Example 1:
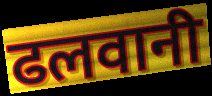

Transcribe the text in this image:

ढलवानी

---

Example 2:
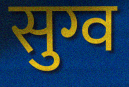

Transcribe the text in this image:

सुग्व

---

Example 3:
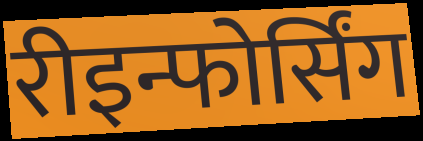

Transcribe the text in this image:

रीइन्फोर्सिंग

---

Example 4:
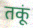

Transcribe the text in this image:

तकूं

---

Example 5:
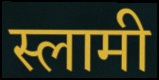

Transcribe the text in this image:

स्लामी